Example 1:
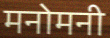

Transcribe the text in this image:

मनोमनी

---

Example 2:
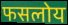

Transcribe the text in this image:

फसलोय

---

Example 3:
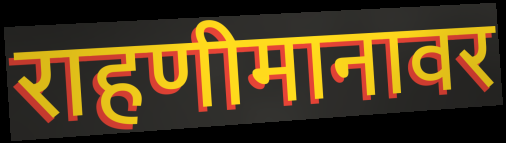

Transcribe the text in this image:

राहणीमानावर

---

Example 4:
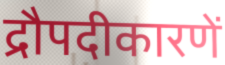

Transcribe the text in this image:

द्रौपदीकारणें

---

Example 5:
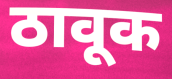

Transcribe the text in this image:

ठावूक